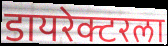
डायरेक्टरला